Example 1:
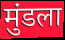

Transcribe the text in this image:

मुंडला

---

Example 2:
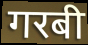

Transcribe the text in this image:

गरबी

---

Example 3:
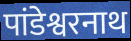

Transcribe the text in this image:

पांडेश्वरनाथ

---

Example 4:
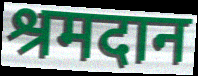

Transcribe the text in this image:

श्रमदान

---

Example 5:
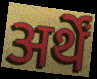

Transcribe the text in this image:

अर्थें